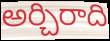
అర్చిరాది